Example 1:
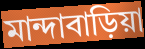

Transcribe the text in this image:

মান্দাবাড়িয়া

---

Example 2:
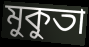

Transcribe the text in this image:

মুকুতা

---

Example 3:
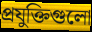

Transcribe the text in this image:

প্রযুক্তিগুলো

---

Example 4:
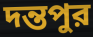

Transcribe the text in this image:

দন্তপুর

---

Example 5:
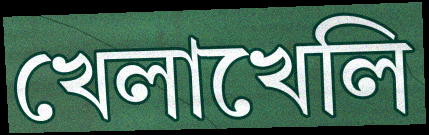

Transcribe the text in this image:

খেলাখেলি